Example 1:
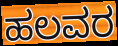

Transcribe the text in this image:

ಹಲವರ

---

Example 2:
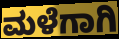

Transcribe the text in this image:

ಮಳೆಗಾಗಿ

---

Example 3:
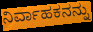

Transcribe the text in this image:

ನಿರ್ವಾಹಕನನ್ನು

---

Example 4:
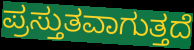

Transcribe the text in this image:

ಪ್ರಸ್ತುತವಾಗುತ್ತದೆ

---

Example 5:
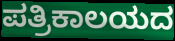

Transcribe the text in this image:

ಪತ್ರಿಕಾಲಯದ